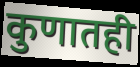
कुणातही